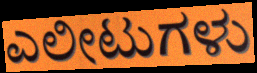
ಎಲೀಟುಗಳು